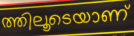
ത്തിലൂടെയാണ്